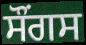
ਸੌਂਗਸ